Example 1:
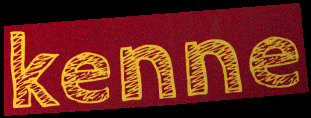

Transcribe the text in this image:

kenne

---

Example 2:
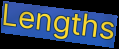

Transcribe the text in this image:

Lengths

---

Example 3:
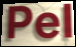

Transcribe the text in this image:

Pel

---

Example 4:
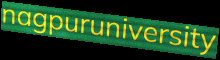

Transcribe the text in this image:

nagpuruniversity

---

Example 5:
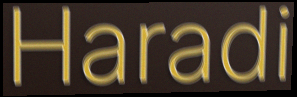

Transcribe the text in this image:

Haradi